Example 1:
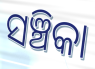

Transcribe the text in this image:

ସଞ୍ଚିକା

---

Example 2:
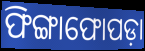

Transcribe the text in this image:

ଫିଙ୍ଗାଫୋପଡ଼ା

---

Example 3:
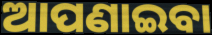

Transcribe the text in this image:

ଆପଣାଇବା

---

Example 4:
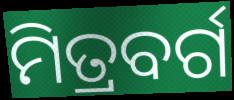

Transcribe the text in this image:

ମିତ୍ରବର୍ଗ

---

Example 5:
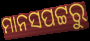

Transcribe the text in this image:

ମାନସପଟ୍ଟରୁ